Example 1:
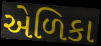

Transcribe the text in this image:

એળિકા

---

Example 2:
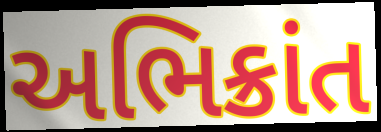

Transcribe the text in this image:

અભિક્રાંત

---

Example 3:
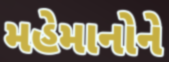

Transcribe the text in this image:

મહેમાનોને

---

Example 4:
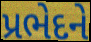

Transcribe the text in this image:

પ્રભેદને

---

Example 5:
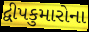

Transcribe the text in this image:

દ્વીપકુમારોના